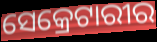
ସେକ୍ରେଟାରୀର